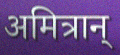
अमित्रान्